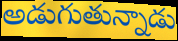
అడుగుతున్నాడు